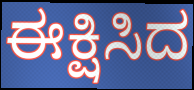
ಈಕ್ಷಿಸಿದ